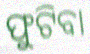
ଫୁଟିବା